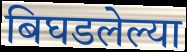
बिघडलेल्या